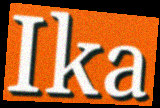
Ika